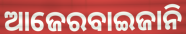
ଆଜେରବାଇଜାନି